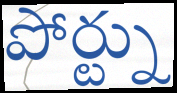
పోర్ట్ను